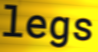
legs